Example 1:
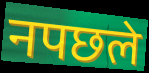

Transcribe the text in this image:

नपछले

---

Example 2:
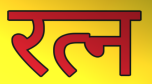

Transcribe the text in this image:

रत्न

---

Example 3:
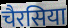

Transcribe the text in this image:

चैरसिया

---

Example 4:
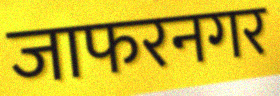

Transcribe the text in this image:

जाफरनगर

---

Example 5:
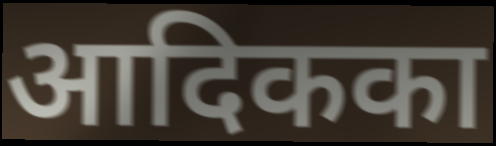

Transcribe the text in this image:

आदिकका